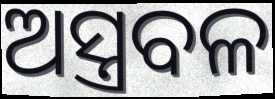
ଅସ୍ତ୍ରବଳ